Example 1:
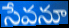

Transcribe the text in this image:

సేవనూ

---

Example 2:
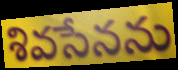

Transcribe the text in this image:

శివసేనను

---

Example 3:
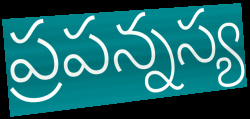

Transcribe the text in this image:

ప్రపన్నస్య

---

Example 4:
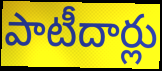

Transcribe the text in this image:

పాటీదార్లు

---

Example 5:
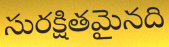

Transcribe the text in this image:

సురక్షితమైనది